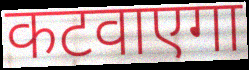
कटवाएगा